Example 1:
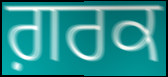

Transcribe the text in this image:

ਗ਼ਰਕ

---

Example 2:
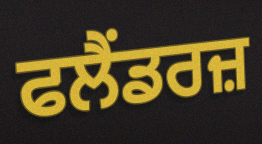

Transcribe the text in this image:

ਫਲੈਂਡਰਜ਼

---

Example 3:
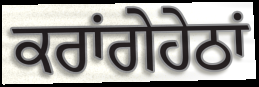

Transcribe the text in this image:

ਕਰਾਂਗੇਹੇਠਾਂ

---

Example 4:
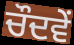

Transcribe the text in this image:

ਚੌਦਵੇਂ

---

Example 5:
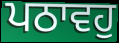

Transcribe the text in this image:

ਪਠਾਵਹੁ